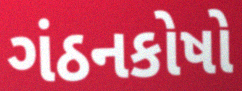
ગંઠનકોષો